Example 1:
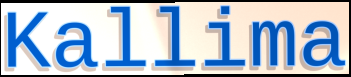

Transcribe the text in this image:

Kallima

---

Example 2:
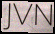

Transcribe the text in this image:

JVN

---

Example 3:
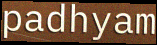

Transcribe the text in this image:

padhyam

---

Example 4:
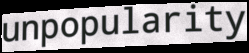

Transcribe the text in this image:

unpopularity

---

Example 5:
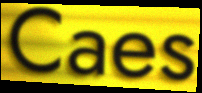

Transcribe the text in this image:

Caes